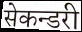
सेकन्डरी